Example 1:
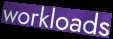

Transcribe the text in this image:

workloads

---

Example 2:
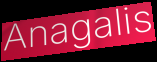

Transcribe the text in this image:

Anagalis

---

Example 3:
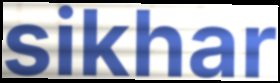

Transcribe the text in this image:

sikhar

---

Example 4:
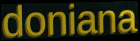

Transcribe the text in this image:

doniana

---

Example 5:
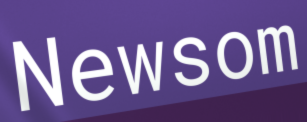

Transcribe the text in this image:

Newsom